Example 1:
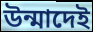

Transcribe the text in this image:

উন্মাদেই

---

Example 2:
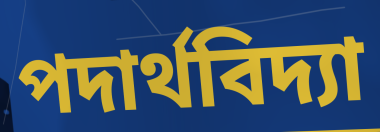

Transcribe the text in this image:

পদার্থবিদ্যা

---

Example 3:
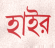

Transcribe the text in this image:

হাইর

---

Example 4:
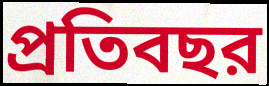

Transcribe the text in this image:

প্রতিবছর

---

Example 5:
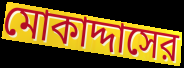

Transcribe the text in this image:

মোকাদ্দাসের